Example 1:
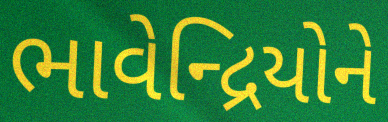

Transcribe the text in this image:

ભાવેન્દ્રિયોને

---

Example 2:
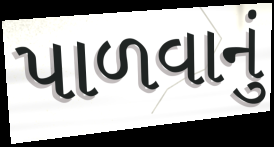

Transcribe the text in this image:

પાળવાનું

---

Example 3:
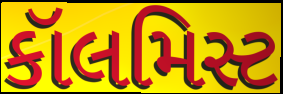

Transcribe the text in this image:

કૉલમિસ્ટ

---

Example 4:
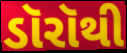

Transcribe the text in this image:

ડૉરૉથી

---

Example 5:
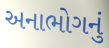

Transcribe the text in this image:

અનાભોગનું